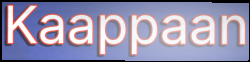
Kaappaan